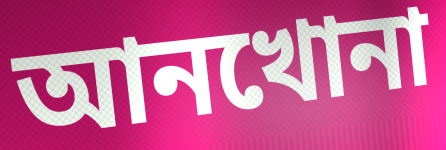
আনখোনা